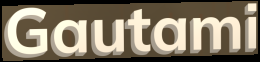
Gautami